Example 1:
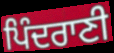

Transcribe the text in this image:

ਪਿੰਦਰਾਣੀ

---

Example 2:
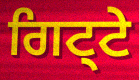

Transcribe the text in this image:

ਗਿਟ੍ਟੇ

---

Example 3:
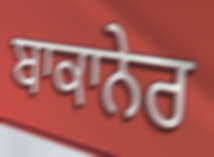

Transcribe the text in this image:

ਬਾਕਾਨੇਰ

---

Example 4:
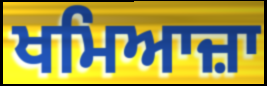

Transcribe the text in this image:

ਖਮਿਆਜ਼ਾ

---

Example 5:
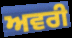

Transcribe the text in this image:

ਅਵਰੀ